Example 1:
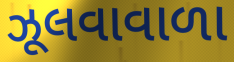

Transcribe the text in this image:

ઝૂલવાવાળા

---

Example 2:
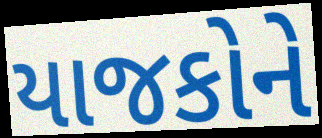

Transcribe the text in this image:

યાજકોને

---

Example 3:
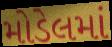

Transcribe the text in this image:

મોડેલમાં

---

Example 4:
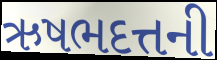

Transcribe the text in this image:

ઋષભદત્તની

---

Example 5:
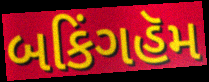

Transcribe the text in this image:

બકિંગહૅમ